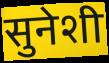
सुनेशी